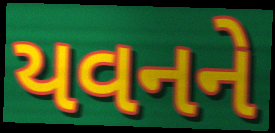
યવનને